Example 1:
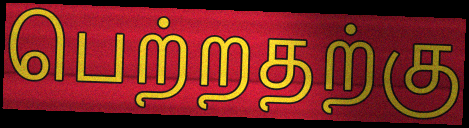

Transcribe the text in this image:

பெற்றதற்கு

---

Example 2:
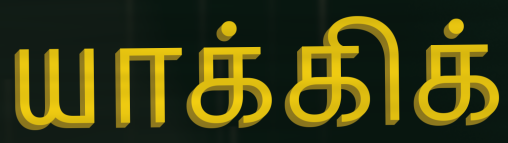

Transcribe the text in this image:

யாக்கிக்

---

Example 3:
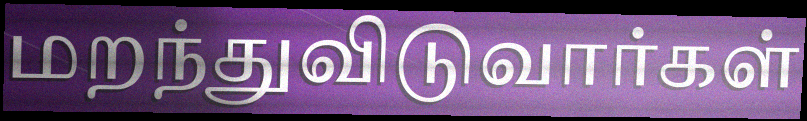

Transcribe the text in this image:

மறந்துவிடுவார்கள்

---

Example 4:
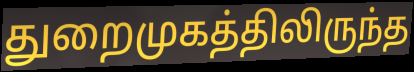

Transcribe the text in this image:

துறைமுகத்திலிருந்த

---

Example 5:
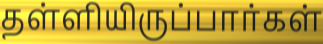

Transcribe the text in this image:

தள்ளியிருப்பார்கள்